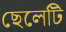
ছেলেটি